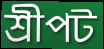
শ্রীপট